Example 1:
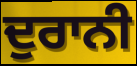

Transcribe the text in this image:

ਦੁਰਾਨੀ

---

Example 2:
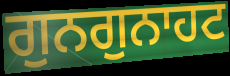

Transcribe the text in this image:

ਗੁਨਗੁਨਾਹਟ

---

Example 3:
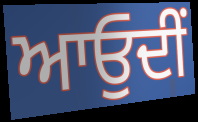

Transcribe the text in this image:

ਆਓੁਦੀਂ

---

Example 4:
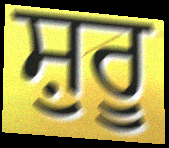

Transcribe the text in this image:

ਸ਼ੁਰੂ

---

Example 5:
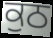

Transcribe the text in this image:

ਕੁਠ